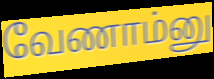
வேணாம்னு